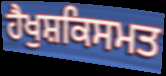
ਹੈਖੁਸ਼ਕਿਸਮਤ